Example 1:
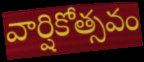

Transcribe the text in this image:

వార్షికోత్సవం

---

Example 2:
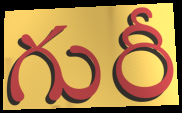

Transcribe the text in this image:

గురీ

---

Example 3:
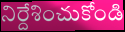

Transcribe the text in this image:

నిర్దేశించుకోండి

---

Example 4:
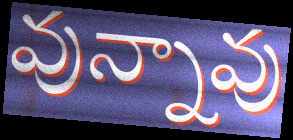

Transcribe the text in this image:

వున్నావు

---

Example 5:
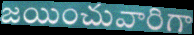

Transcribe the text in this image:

జయించువారిగా